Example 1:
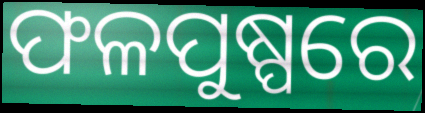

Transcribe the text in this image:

ଫଳପୁଷ୍ପରେ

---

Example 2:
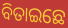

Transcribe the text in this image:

ବିତାଇଛେ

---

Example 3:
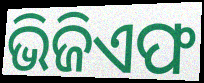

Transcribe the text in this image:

ଭିଜିଏଫ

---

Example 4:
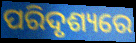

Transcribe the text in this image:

ପରିଦୃଶ୍ୟରେ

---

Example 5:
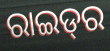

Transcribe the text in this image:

ରାଇଡ୍‌ର